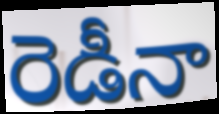
రెడీనా